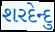
શરદેન્દુ